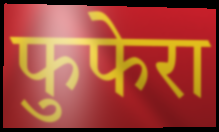
फुफेरा